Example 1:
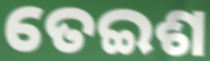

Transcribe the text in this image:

ତେଇଶ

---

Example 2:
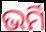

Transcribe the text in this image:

ଭର୍ମି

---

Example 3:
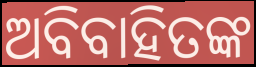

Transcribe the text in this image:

ଅବିବାହିତଙ୍କ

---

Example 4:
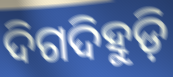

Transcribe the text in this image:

ଦିଗଦିହୁଡ଼ି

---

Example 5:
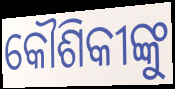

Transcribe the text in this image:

କୌଶିକୀଙ୍କୁ